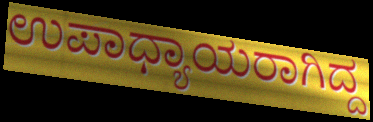
ಉಪಾಧ್ಯಾಯರಾಗಿದ್ದ